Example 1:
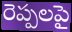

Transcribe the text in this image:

రెప్పలపై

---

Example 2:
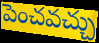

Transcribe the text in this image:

పెంచవచ్చు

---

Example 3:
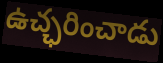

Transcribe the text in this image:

ఉచ్ఛరించాడు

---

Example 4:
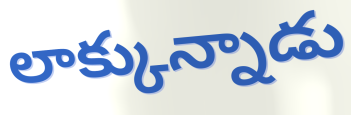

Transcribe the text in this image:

లాక్కున్నాడు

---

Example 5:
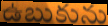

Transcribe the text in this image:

ఉబుకును